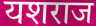
यशराज